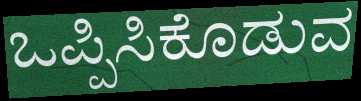
ಒಪ್ಪಿಸಿಕೊಡುವ